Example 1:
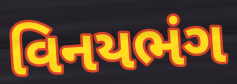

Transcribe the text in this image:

વિનયભંગ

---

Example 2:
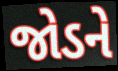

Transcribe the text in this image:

જોડને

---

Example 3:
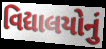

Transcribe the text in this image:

વિદ્યાલયોનું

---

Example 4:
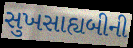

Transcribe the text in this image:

સુખસાહ્યબીની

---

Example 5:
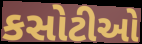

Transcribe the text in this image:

કસોટીઓ